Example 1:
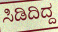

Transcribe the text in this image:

ಸಿಡಿದಿದ್ದ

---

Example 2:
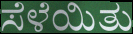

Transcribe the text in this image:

ಸೆಳೆಯಿತು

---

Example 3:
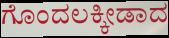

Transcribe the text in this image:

ಗೊಂದಲಕ್ಕೀಡಾದ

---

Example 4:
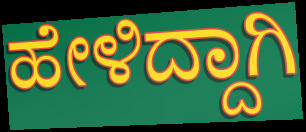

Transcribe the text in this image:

ಹೇಳಿದ್ದಾಗಿ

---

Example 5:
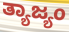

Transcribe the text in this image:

ತ್ಯಾಜ್ಯಂ